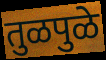
तुळपुळे